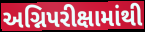
અગ્નિપરીક્ષામાંથી